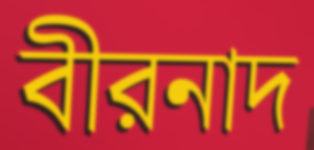
বীরনাদ